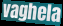
vaghela